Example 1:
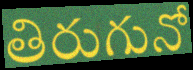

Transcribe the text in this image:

తిరుగునో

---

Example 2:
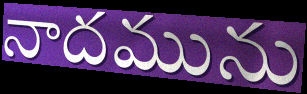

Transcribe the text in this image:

నాదమును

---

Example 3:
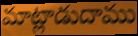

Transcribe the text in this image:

మాట్లాడుదాము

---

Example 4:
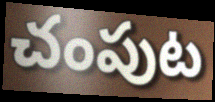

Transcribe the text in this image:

చంపుట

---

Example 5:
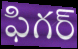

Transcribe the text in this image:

ఫిగర్